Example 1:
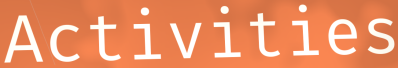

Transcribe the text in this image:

Activities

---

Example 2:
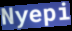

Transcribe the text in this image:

Nyepi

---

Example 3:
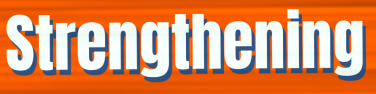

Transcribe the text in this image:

Strengthening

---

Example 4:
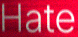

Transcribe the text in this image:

Hate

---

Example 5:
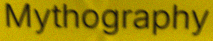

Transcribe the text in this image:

Mythography